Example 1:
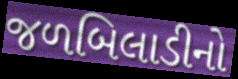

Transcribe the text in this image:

જળબિલાડીનો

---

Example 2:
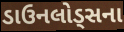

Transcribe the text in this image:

ડાઉનલોડ્સના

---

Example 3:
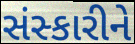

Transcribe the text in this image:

સંસ્કારીને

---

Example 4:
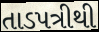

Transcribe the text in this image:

તાડપત્રીથી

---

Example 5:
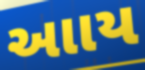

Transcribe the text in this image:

આાય